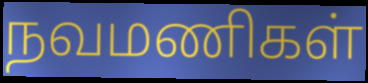
நவமணிகள்